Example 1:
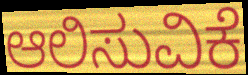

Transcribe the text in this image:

ಆಲಿಸುವಿಕೆ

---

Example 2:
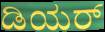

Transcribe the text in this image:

ಡಿಯರ್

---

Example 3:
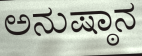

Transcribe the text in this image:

ಅನುಷ್ಠಾನ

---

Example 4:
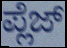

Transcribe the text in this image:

ಪ್ಲೆಜ್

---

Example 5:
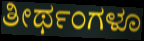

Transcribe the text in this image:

ತೀರ್ಥಂಗಳೂ